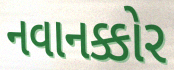
નવાનક્કોર